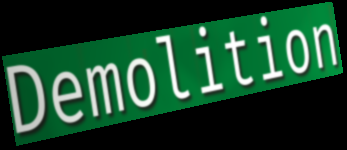
Demolition